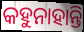
କହୁନାହାନ୍ତି